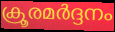
ക്രൂരമർദ്ദനം